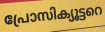
പ്രോസിക്യൂട്ടറെ